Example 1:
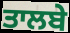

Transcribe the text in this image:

ਤਾਲਬੇ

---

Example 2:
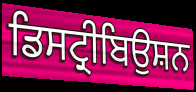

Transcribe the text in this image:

ਡਿਸਟ੍ਰੀਬਿਉਸ਼ਨ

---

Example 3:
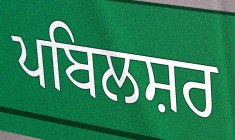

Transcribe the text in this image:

ਪਬਿਲਸ਼ਰ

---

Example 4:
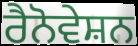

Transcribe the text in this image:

ਰੈਨੋਵੇਸ਼ਨ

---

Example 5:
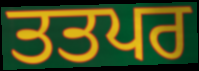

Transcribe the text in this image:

ਤਤਪਰ